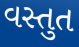
વસ્તુત